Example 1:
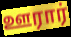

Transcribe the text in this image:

ஊரார்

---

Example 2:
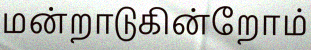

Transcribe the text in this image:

மன்றாடுகின்றோம்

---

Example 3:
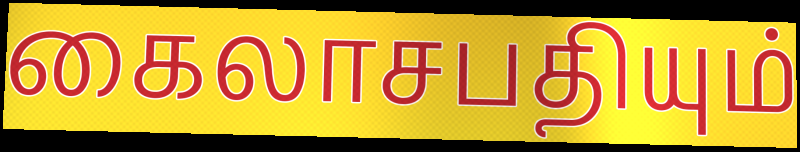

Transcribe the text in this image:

கைலாசபதியும்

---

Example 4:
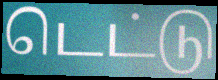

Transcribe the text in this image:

டெட்டு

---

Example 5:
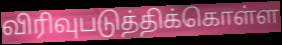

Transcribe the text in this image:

விரிவுபடுத்திக்கொள்ள